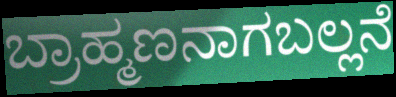
ಬ್ರಾಹ್ಮಣನಾಗಬಲ್ಲನೆ